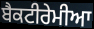
ਬੈਕਟੀਰੇਮੀਆ